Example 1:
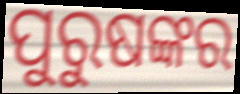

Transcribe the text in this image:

ପୁରୁଷଙ୍କର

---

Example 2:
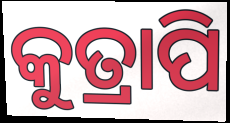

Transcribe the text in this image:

କୁତ୍ରାପି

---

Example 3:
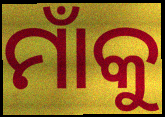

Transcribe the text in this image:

ମାଁକୁ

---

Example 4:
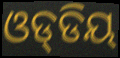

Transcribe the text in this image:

ଓଡ୍‌ଡିୟ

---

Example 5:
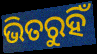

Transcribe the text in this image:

ଭିତରୁହିଁ